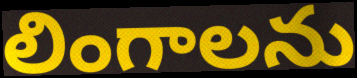
లింగాలను